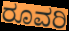
ರೂವರಿ